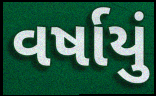
વર્ષાયું